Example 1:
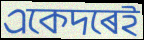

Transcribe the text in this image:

একেদৰেই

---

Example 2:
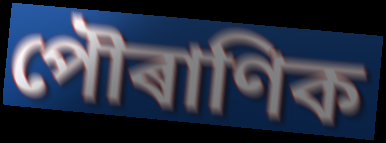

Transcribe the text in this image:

পৌৰাণিক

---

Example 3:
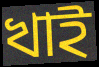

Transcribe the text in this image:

খাই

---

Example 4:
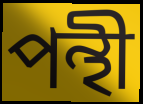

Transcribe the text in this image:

পন্থী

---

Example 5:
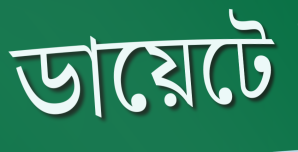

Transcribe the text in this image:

ডায়েটে